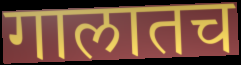
गालातच